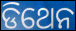
ଡିଥେନ